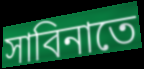
সাবিনাতে